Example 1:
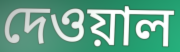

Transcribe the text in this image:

দেওয়াল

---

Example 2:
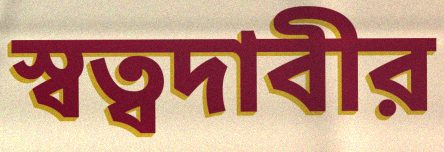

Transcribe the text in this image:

স্বত্বদাবীর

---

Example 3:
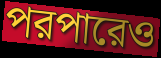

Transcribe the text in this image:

পরপারেও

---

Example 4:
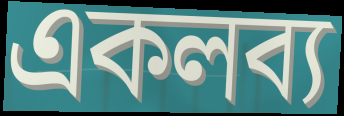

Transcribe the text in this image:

একলব্য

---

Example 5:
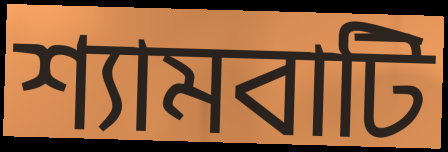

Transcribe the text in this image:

শ্যামবাটি